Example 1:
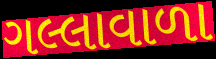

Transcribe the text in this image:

ગલ્લાવાળા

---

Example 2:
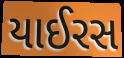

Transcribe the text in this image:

યાઈરસ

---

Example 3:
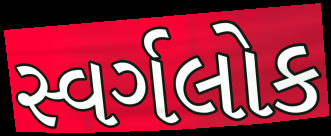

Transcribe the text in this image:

સ્વર્ગલોક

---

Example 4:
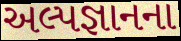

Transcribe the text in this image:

અલ્પજ્ઞાનના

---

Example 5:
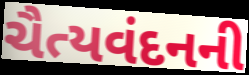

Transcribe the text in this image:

ચૈત્યવંદનની